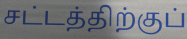
சட்டத்திற்குப்